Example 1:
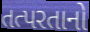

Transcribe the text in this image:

તત્પરતાનો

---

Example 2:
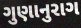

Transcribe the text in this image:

ગુણાનુરાગ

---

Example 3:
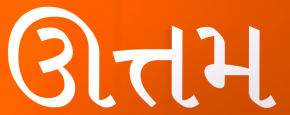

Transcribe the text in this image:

ઊત્તમ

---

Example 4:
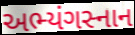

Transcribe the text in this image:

અભ્યંગસ્નાન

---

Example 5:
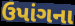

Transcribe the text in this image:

ઉપાંગના